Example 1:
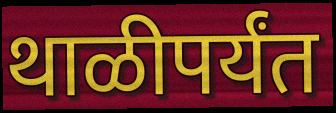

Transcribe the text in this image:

थाळीपर्यंत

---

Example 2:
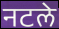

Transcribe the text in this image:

नटले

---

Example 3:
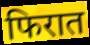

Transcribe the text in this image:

फिरात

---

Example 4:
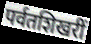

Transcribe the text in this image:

पर्वतशिखरीं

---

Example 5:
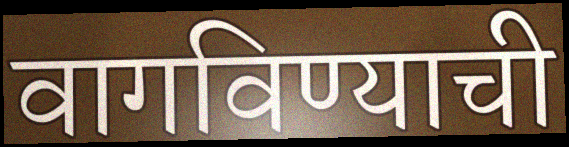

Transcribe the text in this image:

वागविण्याची